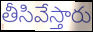
తీసివేస్తారు